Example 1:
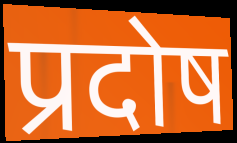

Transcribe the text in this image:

प्रदोष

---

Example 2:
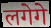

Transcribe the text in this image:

लगेगे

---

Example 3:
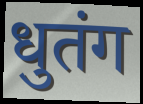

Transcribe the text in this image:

धुतंग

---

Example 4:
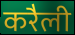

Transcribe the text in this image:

करैली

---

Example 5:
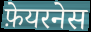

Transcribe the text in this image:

फ़ेयरनेस